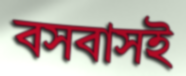
বসবাসই